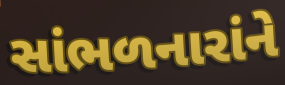
સાંભળનારાંને